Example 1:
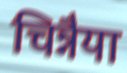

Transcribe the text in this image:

चिन्नैया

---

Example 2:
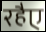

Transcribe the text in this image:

रहैए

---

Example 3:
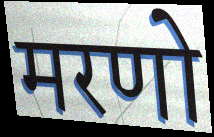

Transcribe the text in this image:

मरणो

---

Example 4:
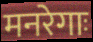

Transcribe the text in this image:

मनरेगाः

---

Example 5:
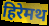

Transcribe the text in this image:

हिरेमथ